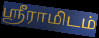
ஸ்ரீராமிடம்